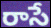
రాసే